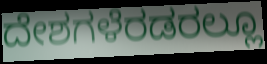
ದೇಶಗಳೆರಡರಲ್ಲೂ